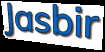
Jasbir